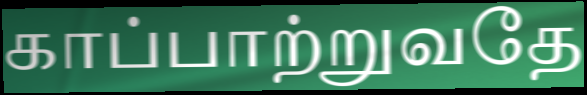
காப்பாற்றுவதே